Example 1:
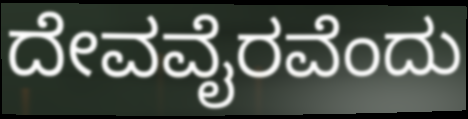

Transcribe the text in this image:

ದೇವವೈರವೆಂದು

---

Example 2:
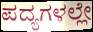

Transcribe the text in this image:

ಪದ್ಯಗಳಲ್ಲೇ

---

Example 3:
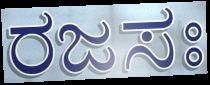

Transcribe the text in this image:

ರಜಸಃ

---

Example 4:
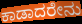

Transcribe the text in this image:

ಕಾಡಾದರೇನು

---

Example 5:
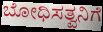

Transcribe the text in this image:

ಬೋಧಿಸತ್ವನಿಗೆ